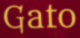
Gato